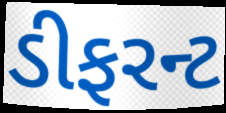
ડીફરન્ટ